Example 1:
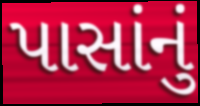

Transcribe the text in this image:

પાસાંનું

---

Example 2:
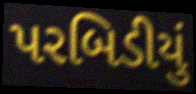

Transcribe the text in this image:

પરબિડીયું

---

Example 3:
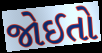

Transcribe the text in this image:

જોઈતો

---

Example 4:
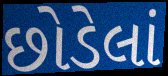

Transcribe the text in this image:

છોડેલાં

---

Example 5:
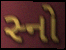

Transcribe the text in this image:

સ્નો